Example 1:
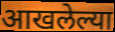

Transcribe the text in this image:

आखलेल्या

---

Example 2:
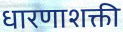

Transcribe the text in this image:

धारणाशक्ती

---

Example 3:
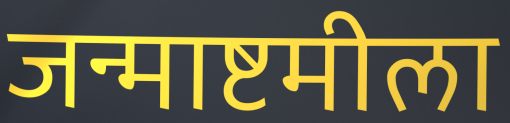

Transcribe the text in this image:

जन्माष्टमीला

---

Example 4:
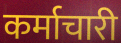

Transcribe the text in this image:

कर्माचारी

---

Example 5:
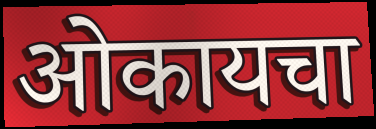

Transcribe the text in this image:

ओकायचा